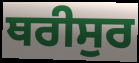
ਥਰੀਸੁਰ